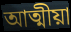
আত্মীয়া